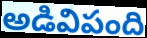
అడివిపంది